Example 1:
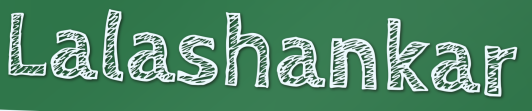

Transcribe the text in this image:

Lalashankar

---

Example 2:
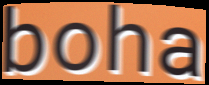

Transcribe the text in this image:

boha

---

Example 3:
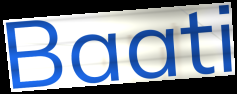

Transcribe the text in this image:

Baati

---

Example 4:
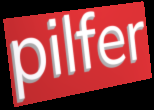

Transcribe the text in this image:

pilfer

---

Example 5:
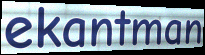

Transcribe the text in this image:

ekantman